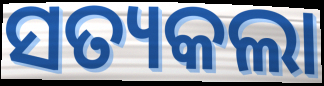
ସତ୍ୟକଲା